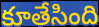
కూతేసింది